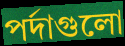
পর্দাগুলো